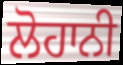
ਲੋਹਾਨੀ